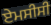
ਏਮਸੀਸੀ